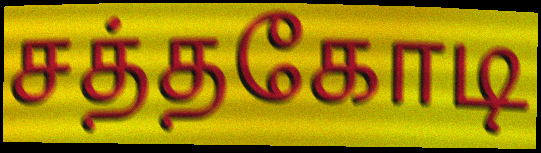
சத்தகோடி